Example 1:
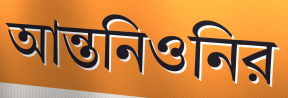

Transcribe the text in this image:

আন্তনিওনির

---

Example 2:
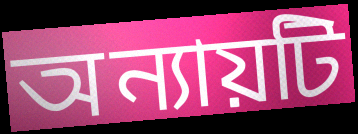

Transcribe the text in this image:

অন্যায়টি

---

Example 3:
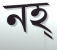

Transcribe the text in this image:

নহ্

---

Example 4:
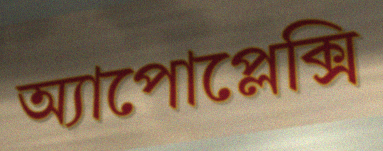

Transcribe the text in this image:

অ্যাপোপ্লেক্সি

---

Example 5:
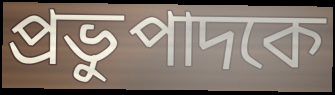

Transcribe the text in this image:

প্রভুপাদকে